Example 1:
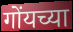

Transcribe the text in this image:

गोंयच्या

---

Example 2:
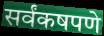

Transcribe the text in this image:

सर्वंकषपणे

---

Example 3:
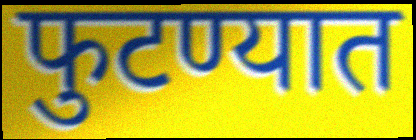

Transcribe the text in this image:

फुटण्यात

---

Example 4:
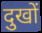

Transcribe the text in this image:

दुखों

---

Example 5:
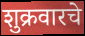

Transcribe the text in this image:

शुक्रवारचे